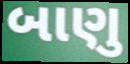
બાણુ